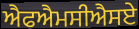
ਐਫਐਮਸੀਐਸਏ